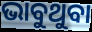
ଭାବୁଥୁବା